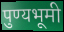
पुण्यभूमी